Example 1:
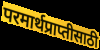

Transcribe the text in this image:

परमार्थप्राप्तीसाठी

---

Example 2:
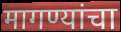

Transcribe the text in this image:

मागण्यांचा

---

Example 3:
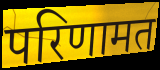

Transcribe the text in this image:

परिणामत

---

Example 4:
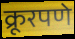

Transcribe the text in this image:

क्रूरपणे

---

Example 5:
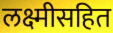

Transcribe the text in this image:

लक्ष्मीसहित